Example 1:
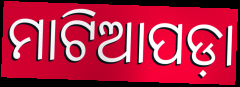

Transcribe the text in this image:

ମାଟିଆପଡ଼ା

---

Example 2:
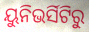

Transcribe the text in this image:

ୟୁନିଭର୍ସିଟିରୁ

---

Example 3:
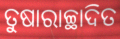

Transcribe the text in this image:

ତୁଷାରାଚ୍ଛାଦିତ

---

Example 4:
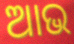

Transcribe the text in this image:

ଆଭ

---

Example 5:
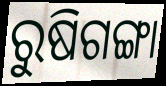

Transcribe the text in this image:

ରୁଷିଗଙ୍ଗା